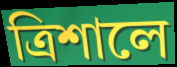
ত্রিশালে